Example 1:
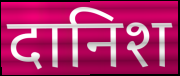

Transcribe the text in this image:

दानिश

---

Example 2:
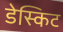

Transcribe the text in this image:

डेस्किट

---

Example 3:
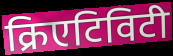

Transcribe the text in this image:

क्रिएटिविटी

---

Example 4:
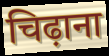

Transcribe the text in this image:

चिढ़ाना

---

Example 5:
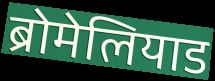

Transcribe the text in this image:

ब्रोमेलियाड